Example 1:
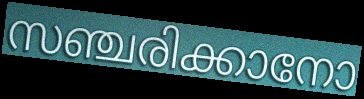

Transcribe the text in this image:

സഞ്ചരിക്കാനോ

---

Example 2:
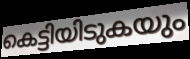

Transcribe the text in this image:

കെട്ടിയിടുകയും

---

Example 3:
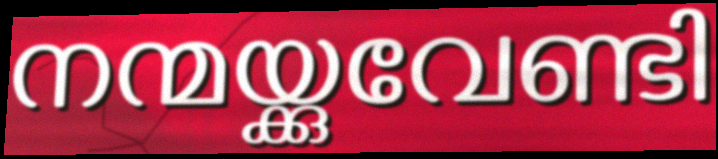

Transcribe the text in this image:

നന്മയ്ക്കുവേണ്ടി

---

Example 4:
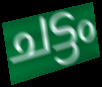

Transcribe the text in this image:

ചട്ടം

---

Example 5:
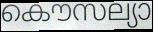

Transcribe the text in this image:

കൌസല്യാ